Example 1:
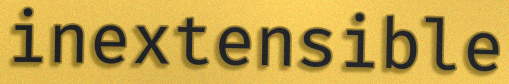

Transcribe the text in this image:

inextensible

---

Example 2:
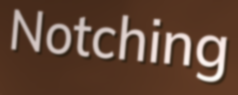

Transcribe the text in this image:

Notching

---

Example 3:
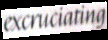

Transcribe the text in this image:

excruciating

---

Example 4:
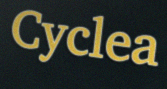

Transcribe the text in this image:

Cyclea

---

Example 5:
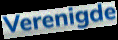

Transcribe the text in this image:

Verenigde